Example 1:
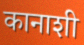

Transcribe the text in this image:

कानाशी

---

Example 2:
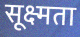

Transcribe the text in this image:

सूक्ष्मता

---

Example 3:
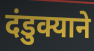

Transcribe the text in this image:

दंडुक्याने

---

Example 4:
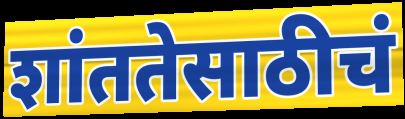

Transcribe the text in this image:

शांततेसाठीचं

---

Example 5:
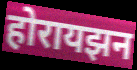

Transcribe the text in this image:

होरायझन